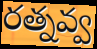
రత్నవ్వ